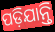
ପଡ଼ିଯାନ୍ତି